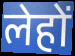
लेहों